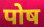
पोष